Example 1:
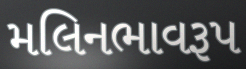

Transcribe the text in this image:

મલિનભાવરૂપ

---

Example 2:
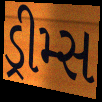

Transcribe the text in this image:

ડ્રીમ્સ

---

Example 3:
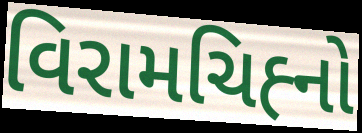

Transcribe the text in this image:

વિરામચિહ્‍નો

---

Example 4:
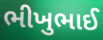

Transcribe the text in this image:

ભીખુભાઈ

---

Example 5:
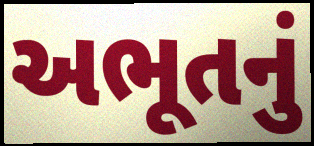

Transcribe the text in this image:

અભૂતનું